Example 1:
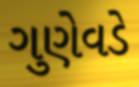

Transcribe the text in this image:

ગુણેવડે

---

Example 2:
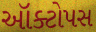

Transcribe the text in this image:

ઑક્ટોપસ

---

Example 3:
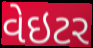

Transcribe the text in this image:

વેઇટર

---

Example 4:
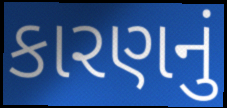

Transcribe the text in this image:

કારણનું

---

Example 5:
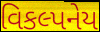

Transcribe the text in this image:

વિકલ્પનેય